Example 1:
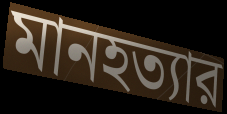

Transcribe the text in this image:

মানহত্যার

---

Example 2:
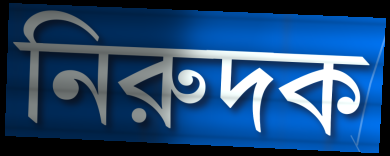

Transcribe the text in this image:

নিরুদক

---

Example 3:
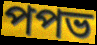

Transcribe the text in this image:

পপভ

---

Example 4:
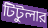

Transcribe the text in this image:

টিটুলার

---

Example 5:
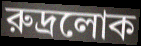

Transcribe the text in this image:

রুদ্রলোক